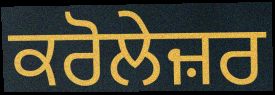
ਕਰੋਲੇਜ਼ਰ